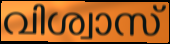
വിശ്വാസ്